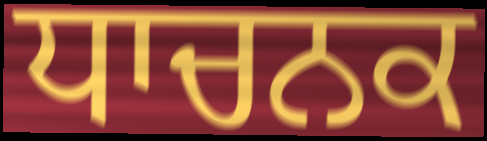
ਧਾਚਨਕ